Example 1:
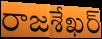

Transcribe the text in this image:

రాజశేఖర్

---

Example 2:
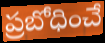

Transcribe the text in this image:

ప్రబోధించే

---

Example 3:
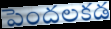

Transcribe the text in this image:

పెందలకడ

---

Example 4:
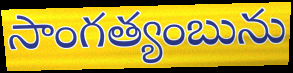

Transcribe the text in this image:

సాంగత్యంబును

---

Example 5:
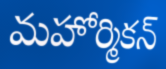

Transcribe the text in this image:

మహోర్మికన్